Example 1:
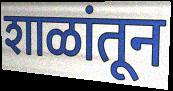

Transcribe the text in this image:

शाळांतून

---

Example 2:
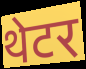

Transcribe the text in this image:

थेटर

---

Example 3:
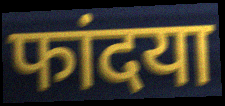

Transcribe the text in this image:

फांदया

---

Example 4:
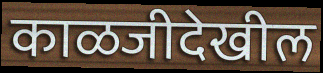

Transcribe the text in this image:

काळजीदेखील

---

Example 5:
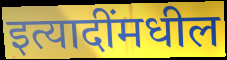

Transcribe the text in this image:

इत्यादींमधील